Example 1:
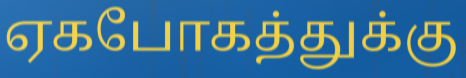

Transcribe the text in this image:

ஏகபோகத்துக்கு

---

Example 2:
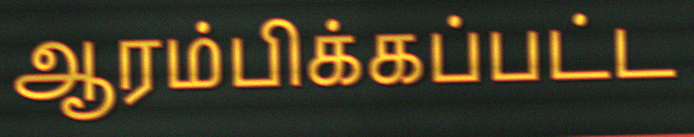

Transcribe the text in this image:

ஆரம்பிக்கப்பட்ட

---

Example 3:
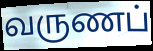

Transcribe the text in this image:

வருணப்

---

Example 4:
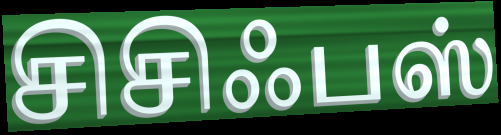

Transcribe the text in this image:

சிசிஃபஸ்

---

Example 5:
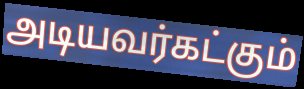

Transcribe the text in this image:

அடியவர்கட்கும்